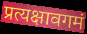
प्रत्यक्षावगमं